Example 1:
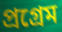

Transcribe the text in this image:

প্ৰগ্ৰেম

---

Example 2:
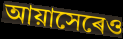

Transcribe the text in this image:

আয়াসেৰেও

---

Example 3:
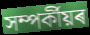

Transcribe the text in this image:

সম্পৰ্কীয়ৰ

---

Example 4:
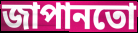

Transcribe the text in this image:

জাপানতো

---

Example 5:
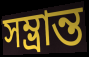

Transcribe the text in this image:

সম্ভ্ৰান্ত